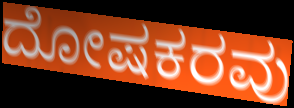
ದೋಷಕರವು